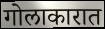
गोलाकारात